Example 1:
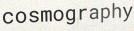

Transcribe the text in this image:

cosmography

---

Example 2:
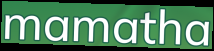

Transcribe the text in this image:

mamatha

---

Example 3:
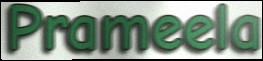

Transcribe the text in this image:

Prameela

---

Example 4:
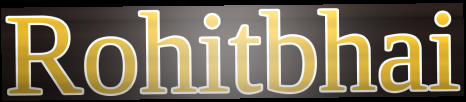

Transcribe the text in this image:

Rohitbhai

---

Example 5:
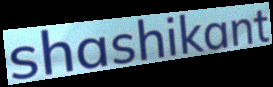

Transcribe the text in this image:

shashikant